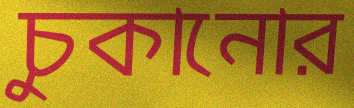
চুকানোর